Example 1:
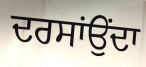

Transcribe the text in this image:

ਦਰਸਾਂਉਂਦਾ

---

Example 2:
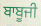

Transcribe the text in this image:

ਬਾਬੂਜੀ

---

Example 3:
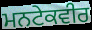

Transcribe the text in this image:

ਮਨਟੇਕਵੀਰ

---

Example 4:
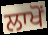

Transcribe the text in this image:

ਲਾਖੋਂ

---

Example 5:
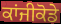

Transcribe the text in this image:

ਕਾਂਜੀਕੋਡੇ